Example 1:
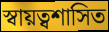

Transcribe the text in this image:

স্বায়ত্বশাসিত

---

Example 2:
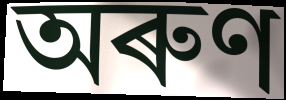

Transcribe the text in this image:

অৰুণ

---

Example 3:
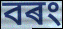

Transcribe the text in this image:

বৰং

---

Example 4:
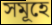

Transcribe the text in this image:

সমূহে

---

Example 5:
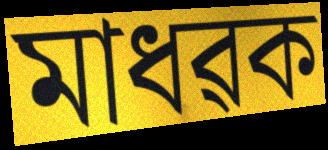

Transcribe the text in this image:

মাধৱক